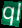
ql